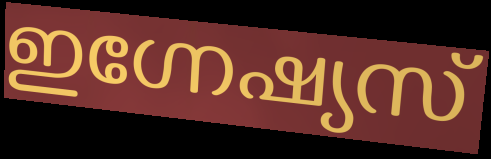
ഇഗ്നേഷ്യസ്